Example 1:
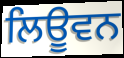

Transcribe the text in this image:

ਲਿਊਵਨ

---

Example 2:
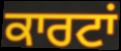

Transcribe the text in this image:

ਕਾਰਟਾਂ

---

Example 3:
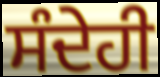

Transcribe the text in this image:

ਸੰਦੇਹੀ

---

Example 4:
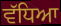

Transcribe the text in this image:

ਵੱਧਿਆ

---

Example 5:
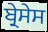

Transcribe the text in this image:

ਬ੍ਰੇਸੇਸ